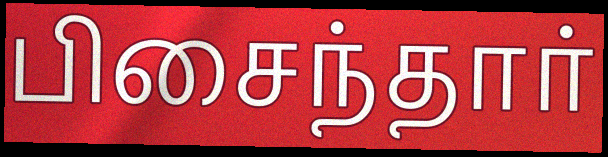
பிசைந்தார்